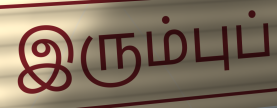
இரும்புப்